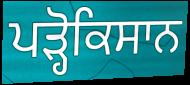
ਪੜ੍ਹੋਕਿਸਾਨ